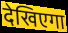
देखिएगा